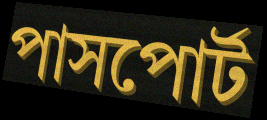
পাসপোর্ট